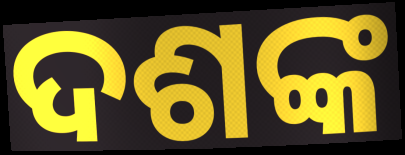
ଦଶଙ୍କ